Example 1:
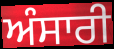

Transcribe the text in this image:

ਅੰਸਾਰੀ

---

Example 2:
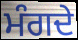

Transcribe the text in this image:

ਮੰਗਦੇ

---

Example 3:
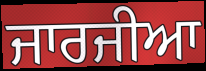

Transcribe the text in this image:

ਜਾਰਜੀਆ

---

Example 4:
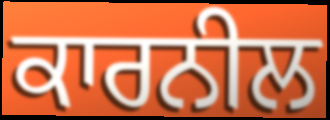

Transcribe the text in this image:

ਕਾਰਨੀਲ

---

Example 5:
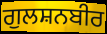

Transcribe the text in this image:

ਗੁਲਸ਼ਨਬੀਰ